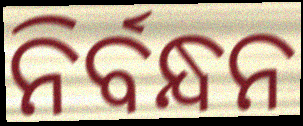
ନିର୍ବନ୍ଧନ